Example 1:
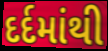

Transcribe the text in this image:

દર્દમાંથી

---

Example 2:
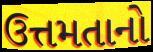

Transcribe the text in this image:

ઉત્તમતાનો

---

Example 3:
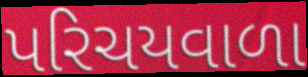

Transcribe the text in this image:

પરિચયવાળા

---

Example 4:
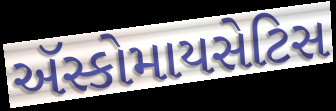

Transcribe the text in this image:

ઍસ્કોમાયસેટિસ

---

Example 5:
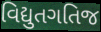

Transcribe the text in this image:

વિદ્યુતગતિજ